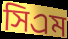
সিএম